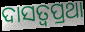
ଦାସତ୍ୱପ୍ରଥା